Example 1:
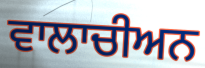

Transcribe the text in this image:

ਵਾਲਾਚੀਅਨ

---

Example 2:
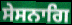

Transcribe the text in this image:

ਸੇਸਨਾਗਿ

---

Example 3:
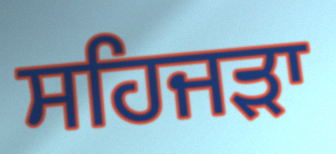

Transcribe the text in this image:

ਸਹਿਜੜਾ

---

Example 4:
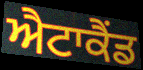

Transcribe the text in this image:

ਐਟਾਕੈਂਡ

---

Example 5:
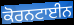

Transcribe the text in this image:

ਕੋਰਨਟਾਈਨ